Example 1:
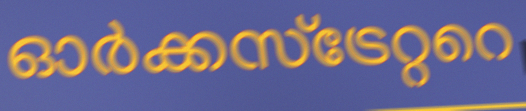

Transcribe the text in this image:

ഓർക്കസ്ട്രേറ്ററെ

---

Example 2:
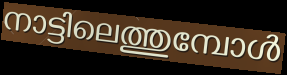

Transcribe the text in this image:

നാട്ടിലെത്തുമ്പോൾ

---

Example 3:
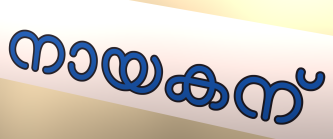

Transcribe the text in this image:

നായകന്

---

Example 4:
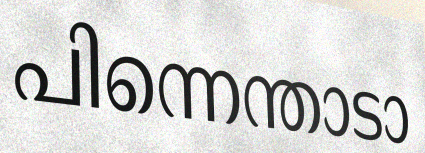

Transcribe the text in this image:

പിന്നെന്താടാ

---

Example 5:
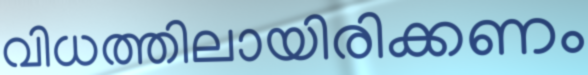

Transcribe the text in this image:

വിധത്തിലായിരിക്കണം